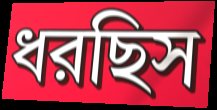
ধরছিস